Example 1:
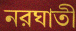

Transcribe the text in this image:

নরঘাতী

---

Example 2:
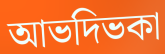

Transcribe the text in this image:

আভদিভকা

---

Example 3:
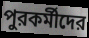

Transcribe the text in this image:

পুরকর্মীদের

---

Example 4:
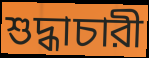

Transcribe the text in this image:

শুদ্ধাচারী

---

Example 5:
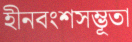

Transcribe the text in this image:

হীনবংশসম্ভূতা